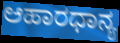
ಆಹಾರಧಾನ್ಯ